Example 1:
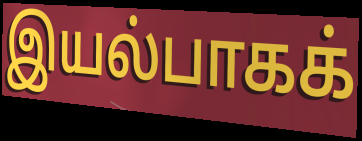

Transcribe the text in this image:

இயல்பாகக்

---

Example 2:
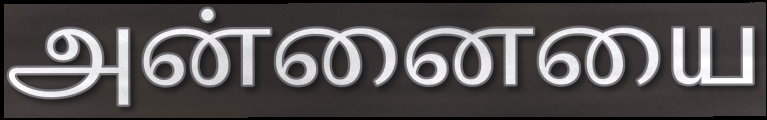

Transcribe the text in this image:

அன்னையை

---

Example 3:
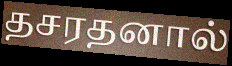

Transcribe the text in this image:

தசரதனால்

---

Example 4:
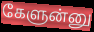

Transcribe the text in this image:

கேளுன்னு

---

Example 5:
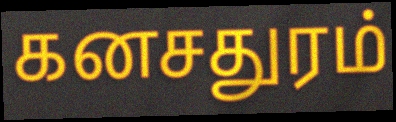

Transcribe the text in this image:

கனசதுரம்